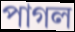
পাগল